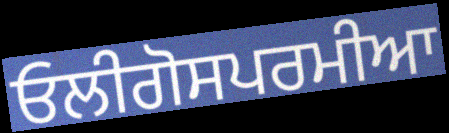
ਓਲੀਗੋਸਪਰਮੀਆ